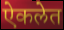
ऐकलेत